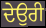
ਦੇਉਰੀ